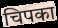
चिपका